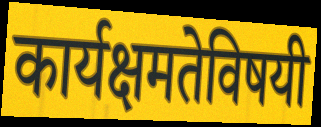
कार्यक्षमतेविषयी